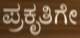
ಪ್ರಕೃತಿಗೇ